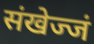
संखेज्जं